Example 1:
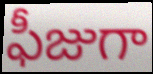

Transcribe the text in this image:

ఫీజుగా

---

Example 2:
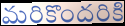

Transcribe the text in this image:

మరికొందరికి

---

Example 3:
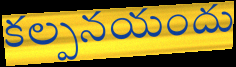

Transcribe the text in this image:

కల్పనయందు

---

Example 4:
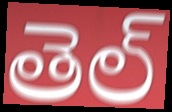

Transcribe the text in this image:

తెల్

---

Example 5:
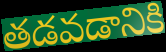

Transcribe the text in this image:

తడవడానికి